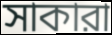
সাকারা